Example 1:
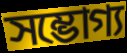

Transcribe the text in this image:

সম্ভোগ্য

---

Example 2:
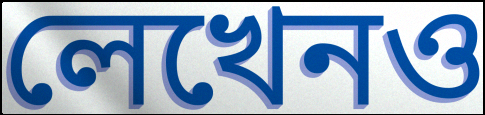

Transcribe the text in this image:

লেখেনও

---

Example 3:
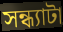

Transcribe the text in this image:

সন্ধ্যাটা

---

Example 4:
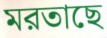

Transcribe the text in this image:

মরতাছে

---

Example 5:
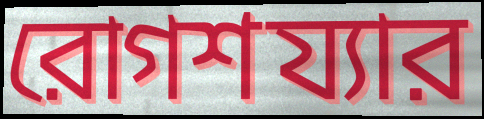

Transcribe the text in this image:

রোগশয্যার